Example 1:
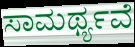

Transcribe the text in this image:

ಸಾಮರ್ಥ್ಯವೆ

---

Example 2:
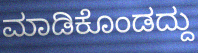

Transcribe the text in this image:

ಮಾಡಿಕೊಂಡದ್ದು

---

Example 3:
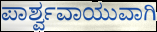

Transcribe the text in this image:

ಪಾರ್ಶ್ವವಾಯುವಾಗಿ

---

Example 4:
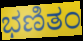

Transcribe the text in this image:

ಭಣಿತಂ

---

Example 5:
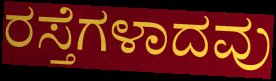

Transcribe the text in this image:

ರಸ್ತೆಗಳಾದವು